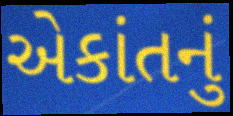
એકાંતનું